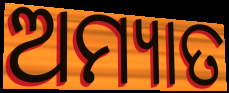
ଅମ୍ୟାତ